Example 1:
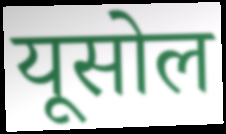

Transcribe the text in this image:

यूसोल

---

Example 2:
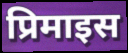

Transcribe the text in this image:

प्रिमाइस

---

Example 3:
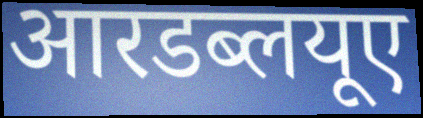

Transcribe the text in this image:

आरडब्लयूए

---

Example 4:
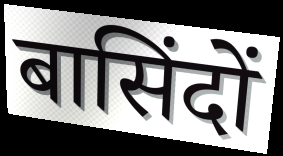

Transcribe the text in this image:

बासिंदों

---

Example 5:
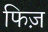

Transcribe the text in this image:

फिज़